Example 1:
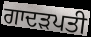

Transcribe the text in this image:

ਗਾਦੜਪਤੀ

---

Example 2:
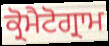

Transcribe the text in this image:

ਕ੍ਰੋਮੈਟੋਗ੍ਰਾਮ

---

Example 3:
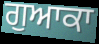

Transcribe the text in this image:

ਗੁਆਕਾ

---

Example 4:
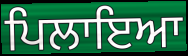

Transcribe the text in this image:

ਪਿਲਾਇਆ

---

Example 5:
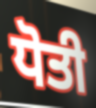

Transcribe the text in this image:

ਧੋਤੀ